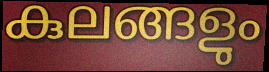
കുലങ്ങളും